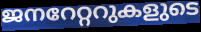
ജനറേറ്ററുകളുടെ